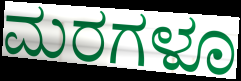
ಮರಗಳೂ